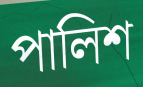
পালিশ